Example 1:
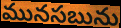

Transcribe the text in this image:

మునసబును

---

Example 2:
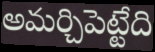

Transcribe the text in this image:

అమర్చిపెట్టేది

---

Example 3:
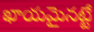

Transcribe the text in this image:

ఖాయమైనట్టే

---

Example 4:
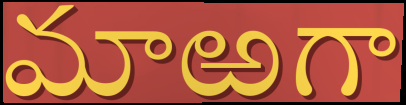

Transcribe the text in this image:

మాఱగా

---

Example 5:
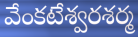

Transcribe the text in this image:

వేంకటేశ్వరశర్మ